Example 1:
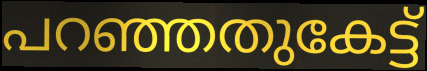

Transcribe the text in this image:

പറഞ്ഞതുകേട്ട്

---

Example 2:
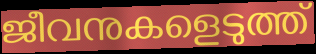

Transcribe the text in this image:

ജീവനുകളെടുത്ത്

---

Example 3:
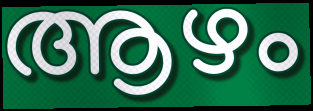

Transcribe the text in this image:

ആഴം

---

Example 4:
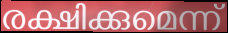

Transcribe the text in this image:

രക്ഷിക്കുമെന്ന്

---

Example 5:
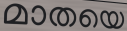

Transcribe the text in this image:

മാതയെ